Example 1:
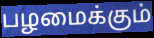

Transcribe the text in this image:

பழமைக்கும்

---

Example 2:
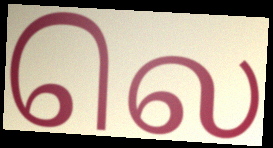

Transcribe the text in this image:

லெ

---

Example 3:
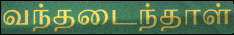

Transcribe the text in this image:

வந்தடைந்தாள்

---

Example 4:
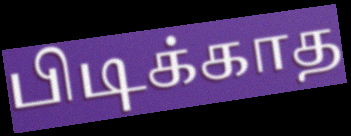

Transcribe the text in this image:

பிடிக்காத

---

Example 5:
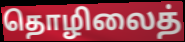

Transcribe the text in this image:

தொழிலைத்